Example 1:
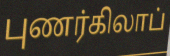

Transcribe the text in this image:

புணர்கிலாப்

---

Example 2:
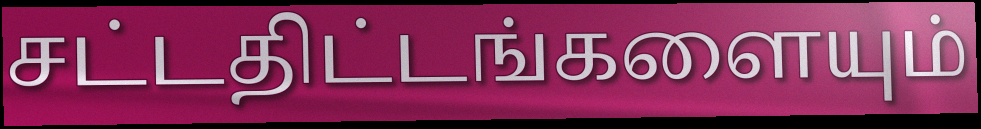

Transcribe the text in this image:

சட்டதிட்டங்களையும்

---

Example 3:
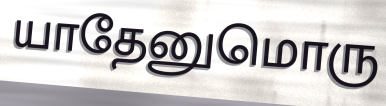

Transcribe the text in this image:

யாதேனுமொரு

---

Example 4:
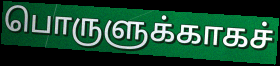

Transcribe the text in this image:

பொருளுக்காகச்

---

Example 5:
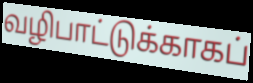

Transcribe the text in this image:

வழிபாட்டுக்காகப்